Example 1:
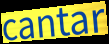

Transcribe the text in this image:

cantar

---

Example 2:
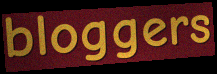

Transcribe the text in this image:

bloggers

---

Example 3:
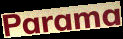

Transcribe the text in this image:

Parama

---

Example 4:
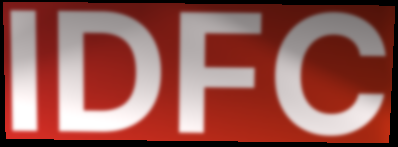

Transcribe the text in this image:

IDFC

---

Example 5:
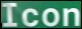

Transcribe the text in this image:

Icon